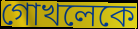
গোখলেকে